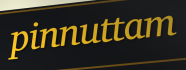
pinnuttam